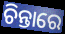
ଚିନ୍ତାରେ